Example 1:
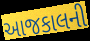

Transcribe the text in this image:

આજકાલની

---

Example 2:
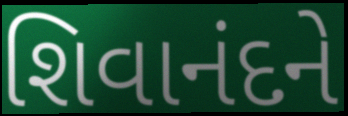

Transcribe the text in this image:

શિવાનંદને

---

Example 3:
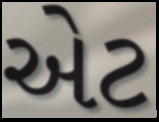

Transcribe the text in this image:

એટ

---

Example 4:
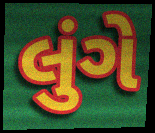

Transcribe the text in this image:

લુંગે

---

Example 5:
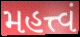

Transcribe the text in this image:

મહત્ત્વં